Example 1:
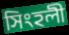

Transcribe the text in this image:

সিংহলী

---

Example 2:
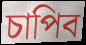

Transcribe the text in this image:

চাপিব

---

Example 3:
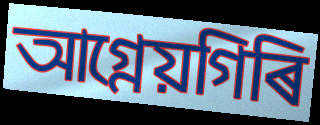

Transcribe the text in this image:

আগ্নেয়গিৰি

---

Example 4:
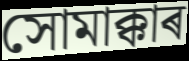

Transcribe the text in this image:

সোমাক্কাৰ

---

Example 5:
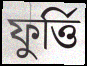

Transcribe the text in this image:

ফুৰ্ত্তি